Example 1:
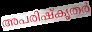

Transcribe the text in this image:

അപരിഷ്കൃതർ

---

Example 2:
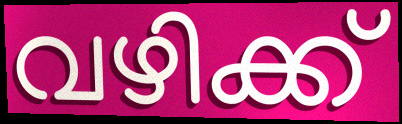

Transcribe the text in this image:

വഴിക്ക്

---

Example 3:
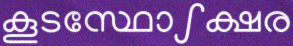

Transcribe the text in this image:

കൂടസ്ഥോഽക്ഷര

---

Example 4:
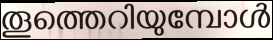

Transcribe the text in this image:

തൂത്തെറിയുമ്പോൾ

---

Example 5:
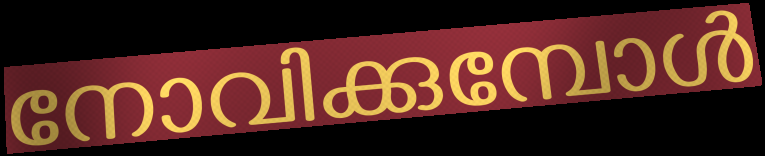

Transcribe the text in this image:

നോവിക്കുമ്പോൾ